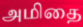
அமிதை